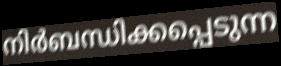
നിർബന്ധിക്കപ്പെടുന്ന